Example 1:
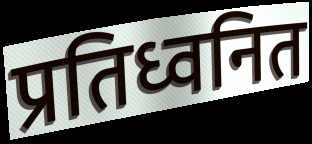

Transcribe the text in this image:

प्रतिध्वनित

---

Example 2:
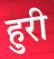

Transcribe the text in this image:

हुरी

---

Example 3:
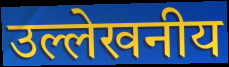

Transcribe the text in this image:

उल्लेखनीय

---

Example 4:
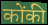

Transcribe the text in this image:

कोंकी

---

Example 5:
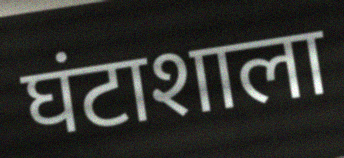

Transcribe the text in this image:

घंटाशाला